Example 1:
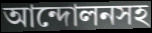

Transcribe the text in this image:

আন্দোলনসহ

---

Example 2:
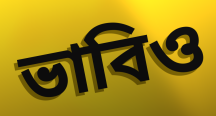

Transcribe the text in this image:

ভাবিও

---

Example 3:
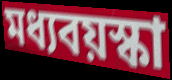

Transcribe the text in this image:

মধ্যবয়স্কা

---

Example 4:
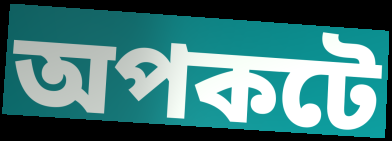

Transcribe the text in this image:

অপকটে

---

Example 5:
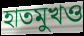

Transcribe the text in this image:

হাতমুখও